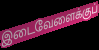
இடைவேளைக்குப்